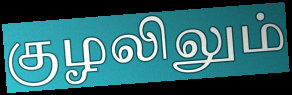
குழலிலும்